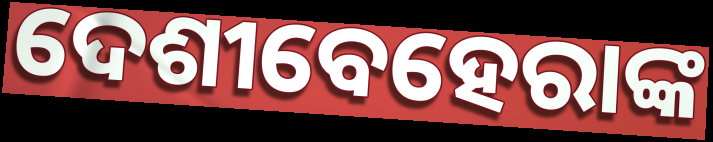
ଦେଶୀବେହେରାଙ୍କ